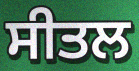
ਸੀਤਲ